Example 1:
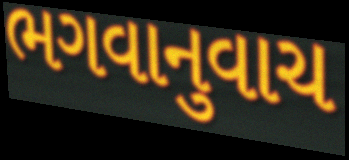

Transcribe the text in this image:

ભગવાનુવાચ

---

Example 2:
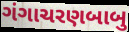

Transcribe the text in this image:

ગંગાચરણબાબુ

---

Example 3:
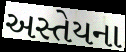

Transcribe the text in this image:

અસ્તેયના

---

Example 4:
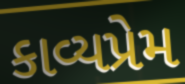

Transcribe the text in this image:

કાવ્યપ્રેમ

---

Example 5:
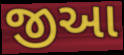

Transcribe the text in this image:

જીઆ